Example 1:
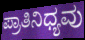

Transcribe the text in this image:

ಪ್ರಾತಿನಿಧ್ಯವು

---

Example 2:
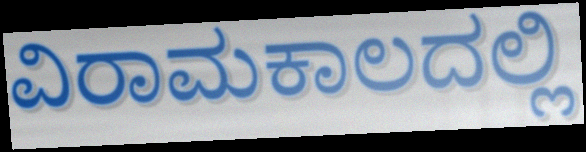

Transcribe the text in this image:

ವಿರಾಮಕಾಲದಲ್ಲಿ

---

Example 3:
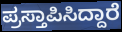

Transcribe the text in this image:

ಪ್ರಸ್ತಾಪಿಸಿದ್ದಾರೆ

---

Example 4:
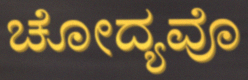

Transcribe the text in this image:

ಚೋದ್ಯವೊ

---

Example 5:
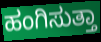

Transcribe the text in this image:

ಹಂಗಿಸುತ್ತಾ